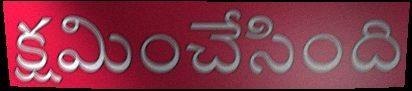
క్షమించేసింది